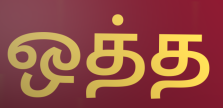
ஒத்த